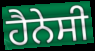
ਹੈਨੇਸੀ